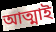
আত্মাই